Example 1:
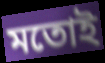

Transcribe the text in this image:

মতোই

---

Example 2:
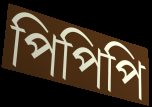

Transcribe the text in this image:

পিপিপি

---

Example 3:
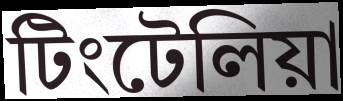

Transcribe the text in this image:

টিংটেলিয়া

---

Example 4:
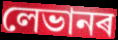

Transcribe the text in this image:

লেভানৰ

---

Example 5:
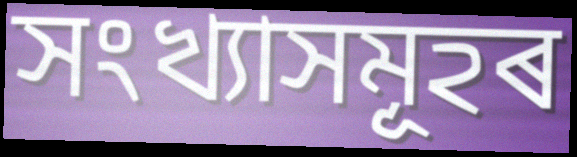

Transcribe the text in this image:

সংখ্যাসমূহৰ